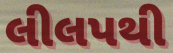
લીલપથી